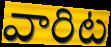
వారిట